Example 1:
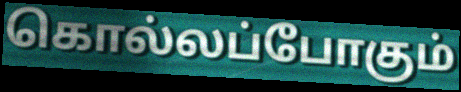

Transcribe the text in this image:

கொல்லப்போகும்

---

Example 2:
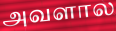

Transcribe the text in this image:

அவளால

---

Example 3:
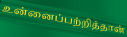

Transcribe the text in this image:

உன்னைப்பற்றித்தான்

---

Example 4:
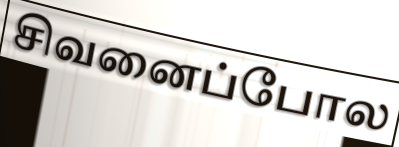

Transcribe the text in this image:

சிவனைப்போல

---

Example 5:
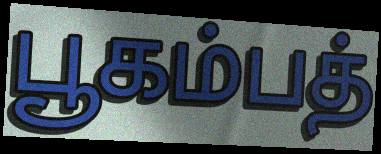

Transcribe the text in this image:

பூகம்பத்